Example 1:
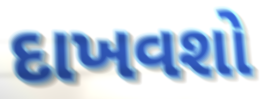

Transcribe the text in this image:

દાખવશો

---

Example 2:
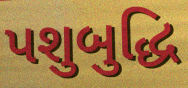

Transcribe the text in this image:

પશુબુદ્ધિ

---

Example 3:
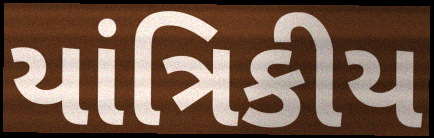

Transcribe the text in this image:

યાંત્રિકીય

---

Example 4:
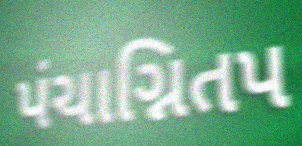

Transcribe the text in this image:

પંચાગ્નિતપ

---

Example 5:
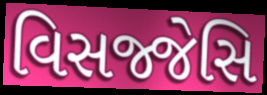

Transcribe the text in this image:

વિસજ્જેસિ